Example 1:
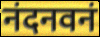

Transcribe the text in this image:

नंदनवनं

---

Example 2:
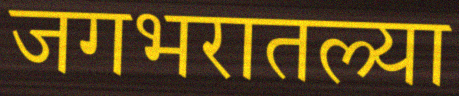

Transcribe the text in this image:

जगभरातल्या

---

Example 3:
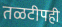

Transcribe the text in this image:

तळटीपही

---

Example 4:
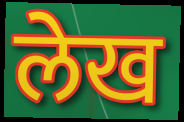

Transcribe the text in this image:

लेख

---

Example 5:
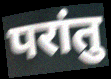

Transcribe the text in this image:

परांतु